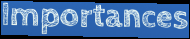
Importances